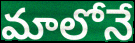
మాలోనే